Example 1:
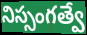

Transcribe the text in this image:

నిస్సంగత్వే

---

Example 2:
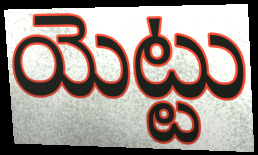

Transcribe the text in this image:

యెట్టు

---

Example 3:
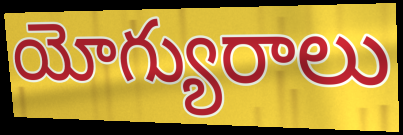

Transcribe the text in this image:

యోగ్యురాలు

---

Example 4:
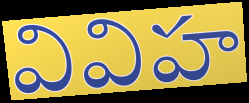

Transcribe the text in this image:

వివిహ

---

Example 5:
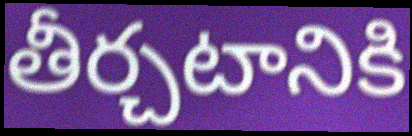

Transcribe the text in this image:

తీర్చటానికి